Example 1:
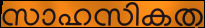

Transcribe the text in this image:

സാഹസികത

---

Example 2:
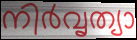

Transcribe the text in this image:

നിർവൃത്യാ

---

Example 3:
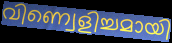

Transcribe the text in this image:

വിണ്വെളിച്ചമായി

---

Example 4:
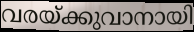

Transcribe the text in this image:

വരയ്ക്കുവാനായി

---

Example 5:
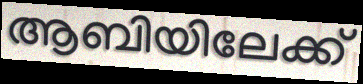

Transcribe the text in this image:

ആബിയിലേക്ക്